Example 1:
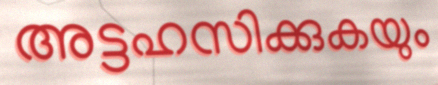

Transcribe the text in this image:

അട്ടഹസിക്കുകയും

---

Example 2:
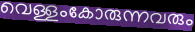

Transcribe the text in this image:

വെള്ളംകോരുന്നവരും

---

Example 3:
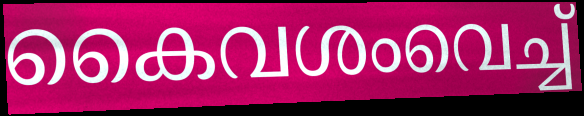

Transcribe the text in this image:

കൈവശംവെച്ച്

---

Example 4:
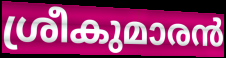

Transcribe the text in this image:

ശ്രീകുമാരൻ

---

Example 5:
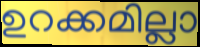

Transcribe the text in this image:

ഉറക്കമില്ലാ